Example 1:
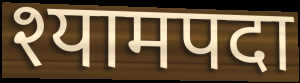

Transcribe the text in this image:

श्यामपदा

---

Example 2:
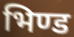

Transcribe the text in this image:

भिण्ड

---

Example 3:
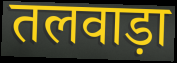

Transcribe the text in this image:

तलवाड़ा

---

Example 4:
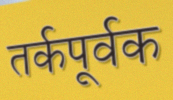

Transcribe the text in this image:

तर्कपूर्वक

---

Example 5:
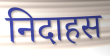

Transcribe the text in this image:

निदाहस